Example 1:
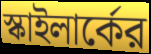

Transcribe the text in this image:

স্কাইলার্কের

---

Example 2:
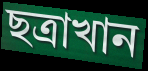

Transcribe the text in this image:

ছত্রাখান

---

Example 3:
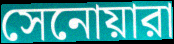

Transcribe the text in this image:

সেনোয়ারা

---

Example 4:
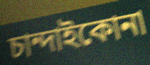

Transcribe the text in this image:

চান্দাইকোনা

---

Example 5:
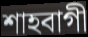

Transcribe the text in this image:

শাহবাগী